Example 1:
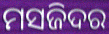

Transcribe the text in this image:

ମସଜିଦର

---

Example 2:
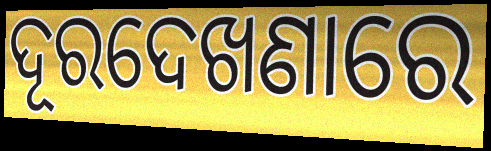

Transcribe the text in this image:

ଦୂରଦେଖଣାରେ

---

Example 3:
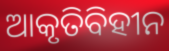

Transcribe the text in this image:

ଆକୃତିବିହୀନ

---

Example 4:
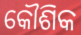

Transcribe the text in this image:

କୌଶିକ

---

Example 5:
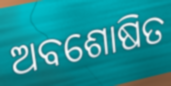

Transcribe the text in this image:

ଅବଶୋଷିତ